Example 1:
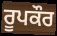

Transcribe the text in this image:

ਰੂਪਕੌਰ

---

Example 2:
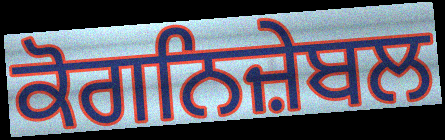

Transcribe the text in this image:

ਕੋਗਨਿਜ਼ੇਬਲ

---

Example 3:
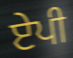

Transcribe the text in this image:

ਏਪੀ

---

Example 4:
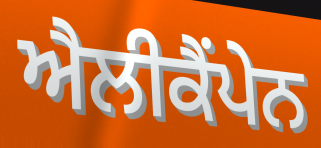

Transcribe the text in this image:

ਐਲੀਕੈਂਪੇਨ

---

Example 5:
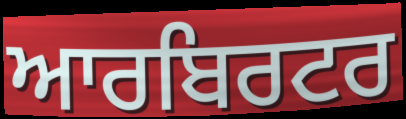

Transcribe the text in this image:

ਆਰਬਿਰਟਰ